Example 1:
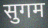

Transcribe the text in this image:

सुगम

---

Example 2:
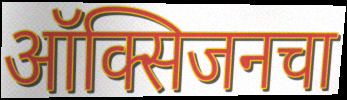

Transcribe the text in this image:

ऑक्सिजनचा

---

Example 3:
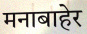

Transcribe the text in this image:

मनाबाहेर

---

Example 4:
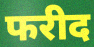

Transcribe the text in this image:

फरीद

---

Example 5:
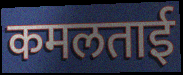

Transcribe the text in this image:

कमलताई